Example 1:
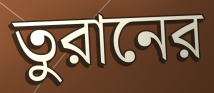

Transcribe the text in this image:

তুরানের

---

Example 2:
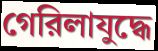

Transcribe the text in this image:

গেরিলাযুদ্ধে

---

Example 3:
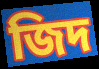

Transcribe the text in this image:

জিদ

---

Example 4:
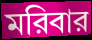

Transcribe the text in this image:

মরিবার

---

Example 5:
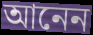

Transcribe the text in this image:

আনেন